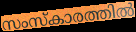
സംസ്കാരത്തിൽ